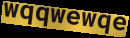
wqqwewqe